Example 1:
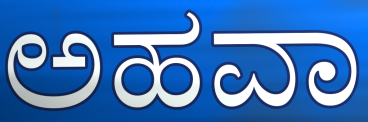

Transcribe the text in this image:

ಅಹವಾ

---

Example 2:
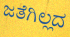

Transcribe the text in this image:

ಜತೆಗಿಲ್ಲದ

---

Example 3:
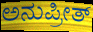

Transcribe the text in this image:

ಅನುಪ್ರೀತ್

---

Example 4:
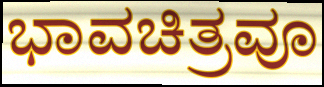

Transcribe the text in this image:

ಭಾವಚಿತ್ರವೂ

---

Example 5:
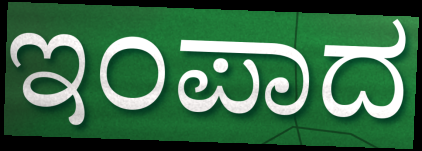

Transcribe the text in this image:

ಇಂಪಾದ